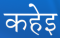
कहेइ